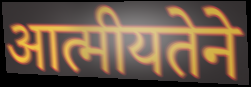
आत्मीयतेने